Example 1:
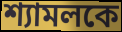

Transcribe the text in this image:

শ্যামলকে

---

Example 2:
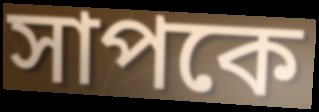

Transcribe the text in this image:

সাপকে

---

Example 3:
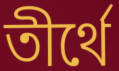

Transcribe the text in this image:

তীর্থে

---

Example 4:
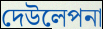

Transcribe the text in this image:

দেউলেপনা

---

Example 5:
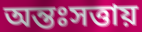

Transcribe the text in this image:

অন্তঃসত্তায়